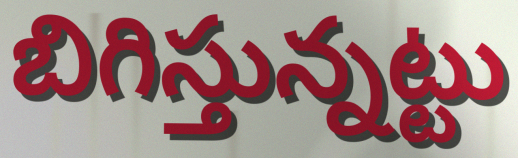
బిగిస్తున్నట్టు